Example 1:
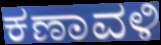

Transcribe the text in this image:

ಕಣಾವಳಿ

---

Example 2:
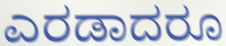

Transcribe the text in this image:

ಎರಡಾದರೂ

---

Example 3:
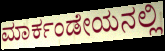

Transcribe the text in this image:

ಮಾರ್ಕಂಡೇಯನಲ್ಲಿ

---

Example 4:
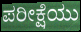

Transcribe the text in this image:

ಪರೀಕ್ಷೆಯು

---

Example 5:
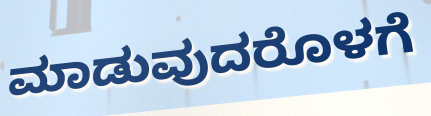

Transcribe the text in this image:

ಮಾಡುವುದರೊಳಗೆ